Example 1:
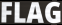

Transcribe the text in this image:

FLAG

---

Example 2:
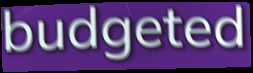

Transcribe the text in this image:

budgeted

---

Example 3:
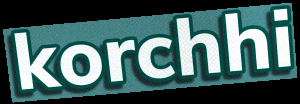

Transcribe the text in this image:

korchhi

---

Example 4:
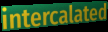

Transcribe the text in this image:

intercalated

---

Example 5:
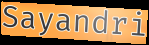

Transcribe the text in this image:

Sayandri